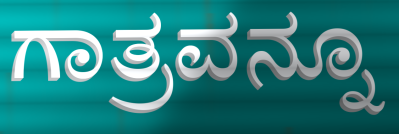
ಗಾತ್ರವನ್ನೂ